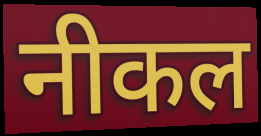
नीकल